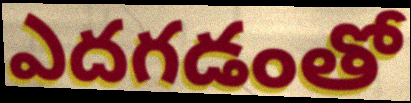
ఎదగడంతో